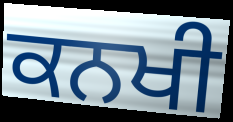
ਕਨਖੀ